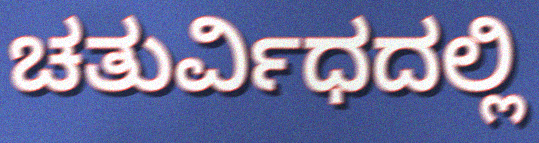
ಚತುರ್ವಿಧದಲ್ಲಿ